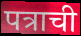
पत्राची